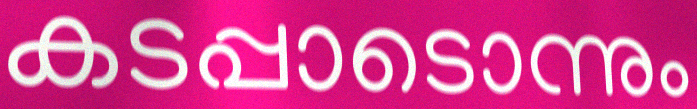
കടപ്പാടൊന്നും